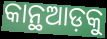
କାନ୍ଥଆଡ଼କୁ